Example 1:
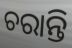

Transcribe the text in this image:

ଚରାନ୍ତି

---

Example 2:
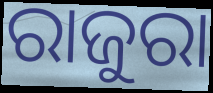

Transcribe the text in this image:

ରାଜୁରା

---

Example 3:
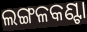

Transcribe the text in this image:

ଲଙ୍ଗଳକଣ୍ଟା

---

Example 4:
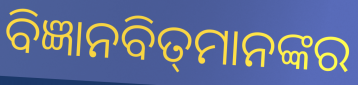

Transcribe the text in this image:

ବିଜ୍ଞାନବିତ୍‌ମାନଙ୍କର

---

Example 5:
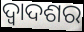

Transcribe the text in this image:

ଦ୍ୱାଦଶର